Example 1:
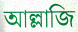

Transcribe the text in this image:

আল্লাজি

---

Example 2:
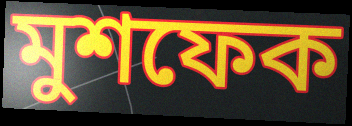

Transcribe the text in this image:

মুশফেক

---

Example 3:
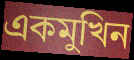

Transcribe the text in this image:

একমুখিন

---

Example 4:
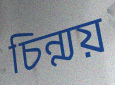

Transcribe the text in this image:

চিন্ময়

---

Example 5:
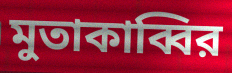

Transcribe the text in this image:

মুতাকাব্বির